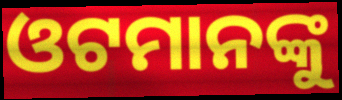
ଓଟମାନଙ୍କୁ